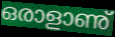
ഒരാളാണു്